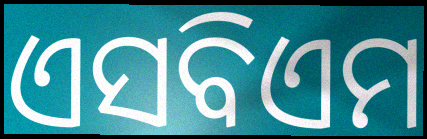
ଏସବିଏମ